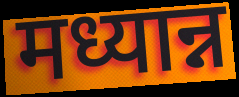
मध्यान्न